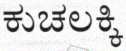
ಕುಚಲಕ್ಕಿ